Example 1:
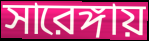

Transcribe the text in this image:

সারেঙ্গায়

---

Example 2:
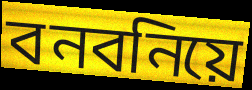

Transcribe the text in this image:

বনবনিয়ে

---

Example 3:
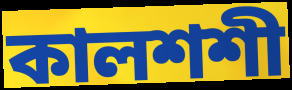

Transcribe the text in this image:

কালশশী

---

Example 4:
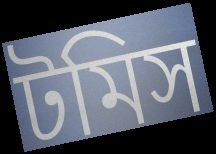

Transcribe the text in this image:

টমিস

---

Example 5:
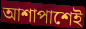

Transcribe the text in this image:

আশাপাশেই